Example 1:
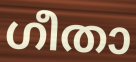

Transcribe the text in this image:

ഗീതാ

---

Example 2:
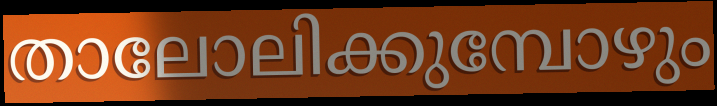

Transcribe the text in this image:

താലോലിക്കുമ്പോഴും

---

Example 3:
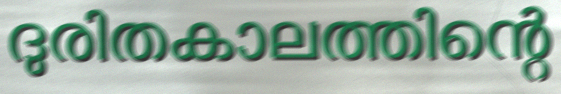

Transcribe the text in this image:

ദുരിതകാലത്തിന്റെ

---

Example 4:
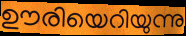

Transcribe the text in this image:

ഊരിയെറിയുന്നു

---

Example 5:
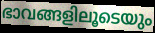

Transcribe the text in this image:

ഭാവങ്ങളിലൂടെയും